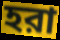
হরা